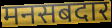
मनसबदार